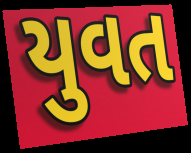
યુવત